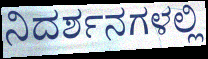
ನಿದರ್ಶನಗಳಲ್ಲಿ